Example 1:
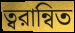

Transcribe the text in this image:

ত্বরান্বিত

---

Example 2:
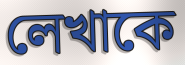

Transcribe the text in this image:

লেখাকে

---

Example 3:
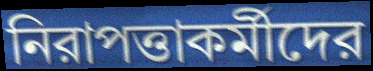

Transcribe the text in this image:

নিরাপত্তাকর্মীদের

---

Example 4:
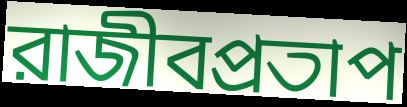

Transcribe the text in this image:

রাজীবপ্রতাপ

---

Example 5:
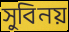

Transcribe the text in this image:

সুবিনয়